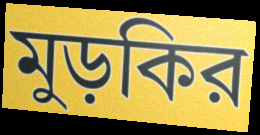
মুড়কির